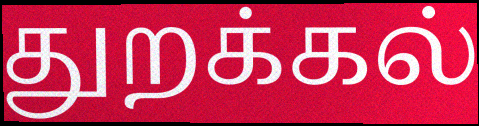
துறக்கல்